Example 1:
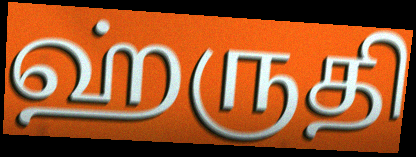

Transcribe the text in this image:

ஹ்ருதி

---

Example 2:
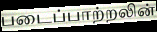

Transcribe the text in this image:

படைப்பாற்றலின்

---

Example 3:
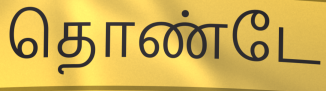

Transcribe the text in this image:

தொண்டே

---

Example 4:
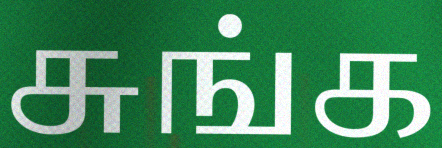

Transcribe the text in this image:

சுங்க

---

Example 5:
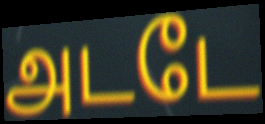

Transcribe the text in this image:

அடடே